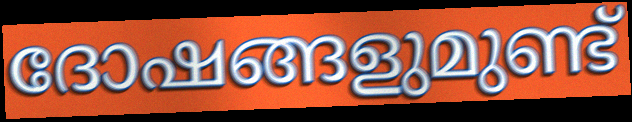
ദോഷങ്ങളുമുണ്ട്